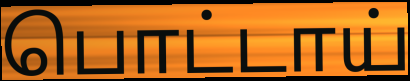
பொட்டாய்